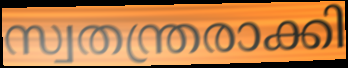
സ്വതന്ത്രരാക്കി